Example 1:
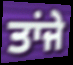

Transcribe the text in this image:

ਤਾਂਜੇ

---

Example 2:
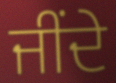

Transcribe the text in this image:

ਜੀਂਦੇ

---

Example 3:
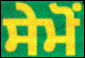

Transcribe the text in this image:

ਸੇਮੋਂ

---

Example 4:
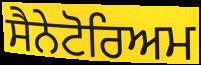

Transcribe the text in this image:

ਸੈਨੇਟੋਰਿਅਮ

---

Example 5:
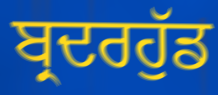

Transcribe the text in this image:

ਬ੍ਰਦਰਹੁੱਡ